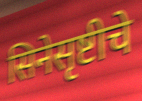
सिनेसृष्टीचे